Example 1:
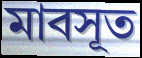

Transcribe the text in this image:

মাবসূত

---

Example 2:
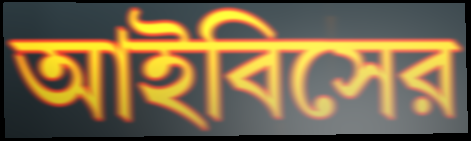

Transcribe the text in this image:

আইবিসের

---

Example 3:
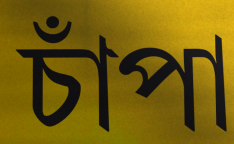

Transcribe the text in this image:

চাঁপা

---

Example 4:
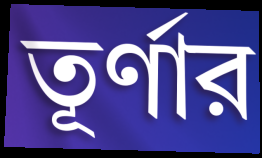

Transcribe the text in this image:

তূর্ণার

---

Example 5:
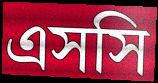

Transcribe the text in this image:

এসসি